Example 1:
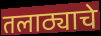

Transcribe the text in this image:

तलाठ्याचे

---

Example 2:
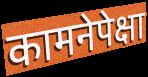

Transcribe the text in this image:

कामनेपेक्षा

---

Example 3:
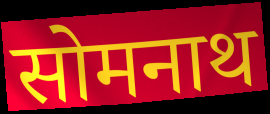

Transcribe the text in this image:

सोमनाथ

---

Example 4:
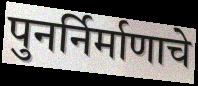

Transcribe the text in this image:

पुनर्निर्माणाचे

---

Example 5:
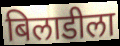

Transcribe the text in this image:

बिलाडीला